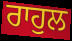
ਰਾਹੁਲ